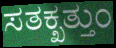
ಸತಕ್ಖತ್ತುಂ